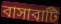
বাসাবাটি